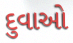
દુવાઓ